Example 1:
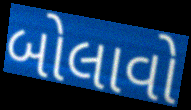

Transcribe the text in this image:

બોલાવો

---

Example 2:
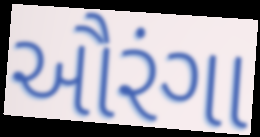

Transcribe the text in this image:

ઔરંગા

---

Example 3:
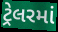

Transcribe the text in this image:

ટ્રેલરમાં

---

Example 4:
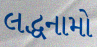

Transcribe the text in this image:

લદ્ધનામો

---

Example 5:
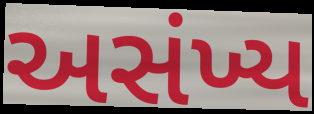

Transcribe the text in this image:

અસંખ્ય